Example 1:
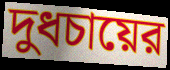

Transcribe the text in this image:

দুধচায়ের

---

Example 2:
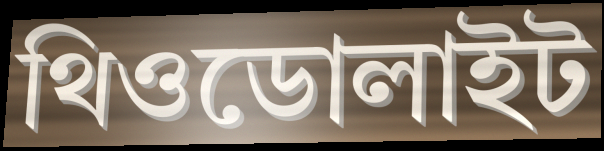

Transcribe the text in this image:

থিওডোলাইট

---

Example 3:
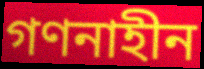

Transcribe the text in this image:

গণনাহীন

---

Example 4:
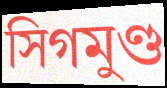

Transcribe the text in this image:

সিগমুণ্ড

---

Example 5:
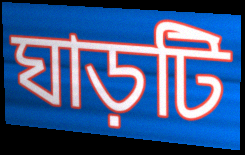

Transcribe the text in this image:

ঘাড়টি